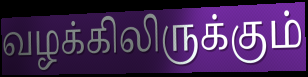
வழக்கிலிருக்கும்